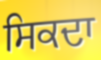
ਸਿਕਦਾ